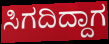
ಸಿಗದಿದ್ದಾಗ